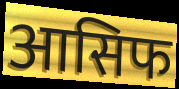
आसिफ